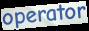
operator